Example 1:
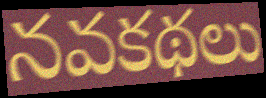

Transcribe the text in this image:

నవకథలు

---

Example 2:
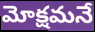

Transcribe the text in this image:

మోక్షమనే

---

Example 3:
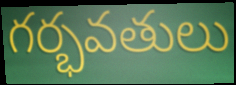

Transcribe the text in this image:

గర్భవతులు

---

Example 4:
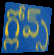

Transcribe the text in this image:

గ్లోవ్స్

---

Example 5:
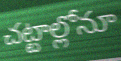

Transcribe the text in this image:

చట్టాల్లోనూ